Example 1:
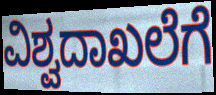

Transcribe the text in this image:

ವಿಶ್ವದಾಖಲೆಗೆ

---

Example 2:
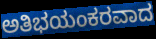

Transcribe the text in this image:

ಅತಿಭಯಂಕರವಾದ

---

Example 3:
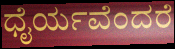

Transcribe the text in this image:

ಧೈರ್ಯವೆಂದರೆ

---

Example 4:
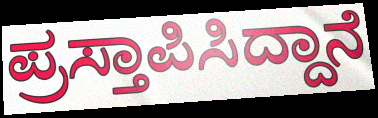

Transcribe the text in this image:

ಪ್ರಸ್ತಾಪಿಸಿದ್ದಾನೆ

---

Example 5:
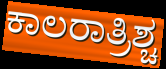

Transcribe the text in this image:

ಕಾಲರಾತ್ರಿಶ್ಚ